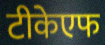
टीकेएफ